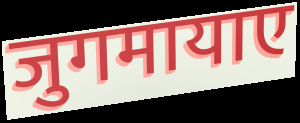
जुगमायाए